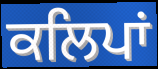
ਕਲਿਪਾਂ